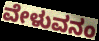
ವೇಳುವನಂ